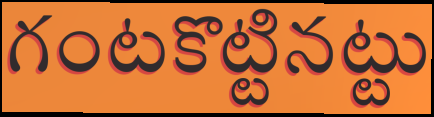
గంటకొట్టినట్టు